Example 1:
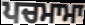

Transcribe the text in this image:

ਪਚਮਾਮਾ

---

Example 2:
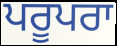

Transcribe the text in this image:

ਪਰੂਪਰਾ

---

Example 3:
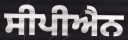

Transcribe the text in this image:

ਸੀਪੀਐਨ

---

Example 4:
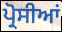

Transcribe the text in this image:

ਪ੍ਰੋਸੀਆਂ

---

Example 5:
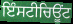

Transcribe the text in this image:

ਇੰਸਟੀਚਿਊਂਟ